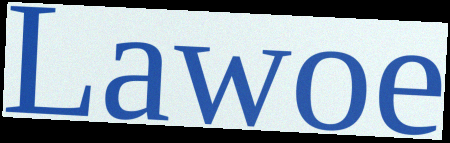
Lawoe